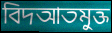
বিদআতমুক্ত